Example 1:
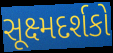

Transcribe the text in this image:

સૂક્ષ્મદર્શકો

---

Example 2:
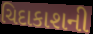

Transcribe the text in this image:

ચિદાકાશની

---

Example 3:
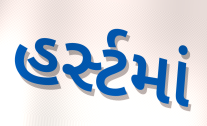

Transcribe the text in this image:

હર્સ્ટમાં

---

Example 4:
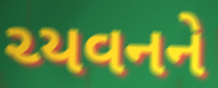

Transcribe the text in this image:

ચ્યવનને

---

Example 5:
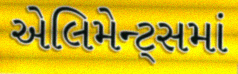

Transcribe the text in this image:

એલિમેન્ટ્સમાં